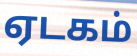
ஏடகம்